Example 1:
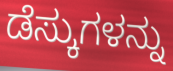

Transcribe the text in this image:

ಡೆಸ್ಕುಗಳನ್ನು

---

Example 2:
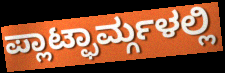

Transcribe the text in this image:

ಪ್ಲಾಟ್ಫಾರ್ಮ್ಗಳಲ್ಲಿ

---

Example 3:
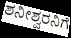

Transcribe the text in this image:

ಶನೀಶ್ವರನಿಗೆ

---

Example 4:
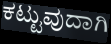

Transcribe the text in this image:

ಕಟ್ಟುವುದಾಗಿ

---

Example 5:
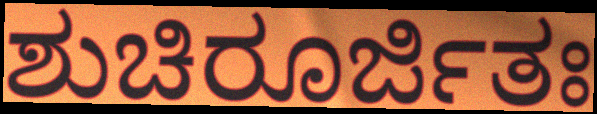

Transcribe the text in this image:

ಶುಚಿರೂರ್ಜಿತಃ